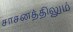
சாசனத்திலும்